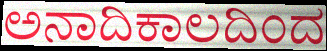
ಅನಾದಿಕಾಲದಿಂದ